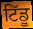
ਟਿੱਡੂ